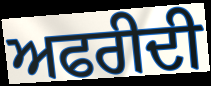
ਅਫਰੀਦੀ